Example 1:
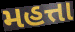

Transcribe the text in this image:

મહત્તા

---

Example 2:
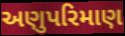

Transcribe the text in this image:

અણુપરિમાણ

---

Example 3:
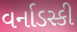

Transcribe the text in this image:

વર્નાડસ્કી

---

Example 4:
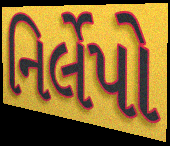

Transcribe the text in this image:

નિર્લેપો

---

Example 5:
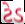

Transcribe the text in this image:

ટેડ